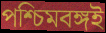
পশ্চিমবঙ্গই